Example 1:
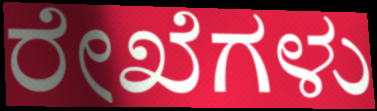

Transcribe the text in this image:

ರೇಖೆಗಳು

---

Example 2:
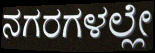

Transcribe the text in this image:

ನಗರಗಳಲ್ಲೇ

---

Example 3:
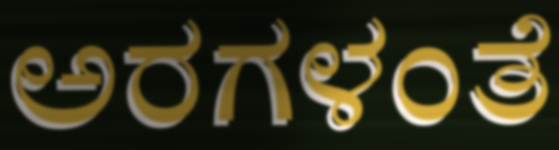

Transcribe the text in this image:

ಅರಗಳಂತೆ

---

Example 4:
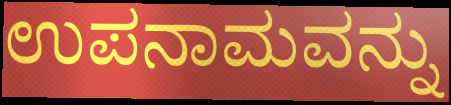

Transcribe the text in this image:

ಉಪನಾಮವನ್ನು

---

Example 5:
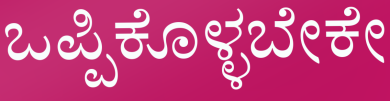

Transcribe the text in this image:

ಒಪ್ಪಿಕೊಳ್ಳಬೇಕೇ